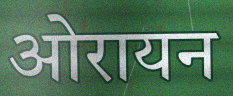
ओरायन